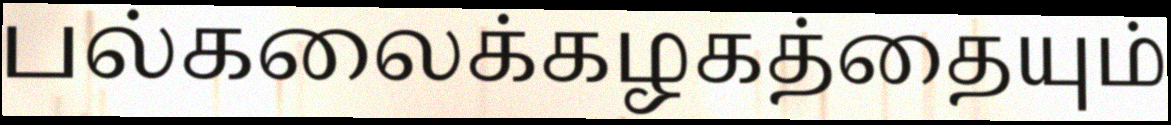
பல்கலைக்கழகத்தையும்